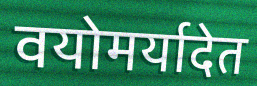
वयोमर्यादेत